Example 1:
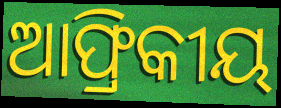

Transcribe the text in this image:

ଆଫ୍ରିକୀୟ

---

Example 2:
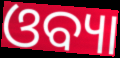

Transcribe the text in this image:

ଓବ୍ୟା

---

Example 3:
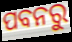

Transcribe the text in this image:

ପବନରୁ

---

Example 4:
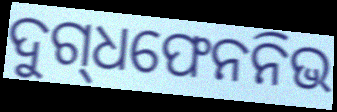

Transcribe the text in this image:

ଦୁଗ୍‍ଧଫେନନିଭ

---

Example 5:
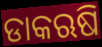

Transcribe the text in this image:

ଡାକଋଷି